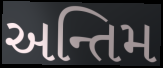
અન્તિમ